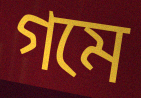
গমে